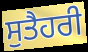
ਸੁਤੈਹਰੀ